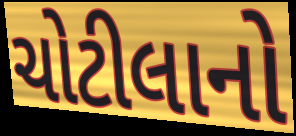
ચોટીલાનો